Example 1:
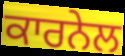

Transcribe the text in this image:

ਕਾਰਨੇਲ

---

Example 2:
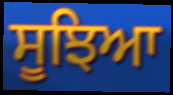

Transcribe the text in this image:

ਸੂਝਿਆ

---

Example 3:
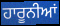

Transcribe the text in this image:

ਹਾਰੂਨੀਆਂ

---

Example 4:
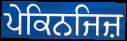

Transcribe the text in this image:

ਪੇਕਿਨਜਿਜ਼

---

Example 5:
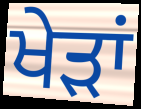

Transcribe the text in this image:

ਖੇੜਾਂ